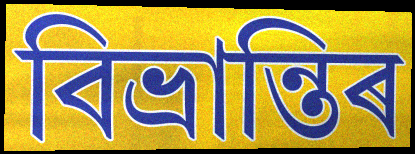
বিভ্ৰান্তিৰ